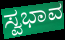
ಸ್ವಭಾವ